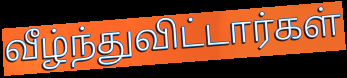
வீழ்ந்துவிட்டார்கள்